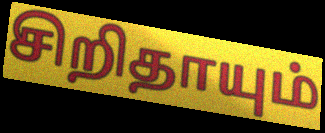
சிறிதாயும்